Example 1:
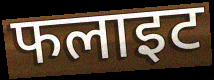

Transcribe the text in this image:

फलाइट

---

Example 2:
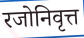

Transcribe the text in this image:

रजोनिवृत्त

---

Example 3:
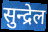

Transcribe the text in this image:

सुन्द्रेल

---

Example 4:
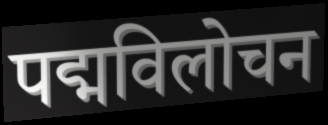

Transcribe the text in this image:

पद्मविलोचन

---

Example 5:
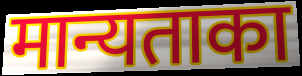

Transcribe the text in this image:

मान्यताका